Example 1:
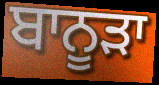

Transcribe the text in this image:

ਬਾਨੂੜਾ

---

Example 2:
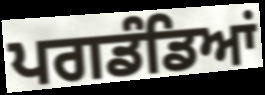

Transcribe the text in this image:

ਪਗਡੰਡਿਆਂ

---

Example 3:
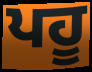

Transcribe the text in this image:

ਪਹੂ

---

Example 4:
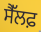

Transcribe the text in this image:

ਸੈੱਲਫ਼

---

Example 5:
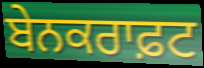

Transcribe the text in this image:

ਬੇਨਕਰਾਫ਼ਟ